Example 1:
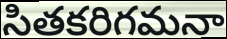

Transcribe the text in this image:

సితకరిగమనా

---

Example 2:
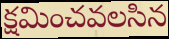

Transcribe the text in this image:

క్షమించవలసిన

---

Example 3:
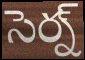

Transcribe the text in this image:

సెర్న్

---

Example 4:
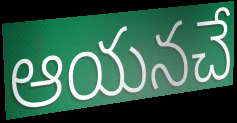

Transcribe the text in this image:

ఆయనచే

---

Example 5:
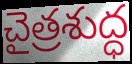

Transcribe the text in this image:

చైత్రశుద్ధ